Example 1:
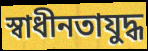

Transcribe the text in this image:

স্বাধীনতাযুদ্ধ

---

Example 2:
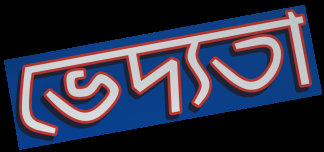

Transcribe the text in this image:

ভেদ্যতা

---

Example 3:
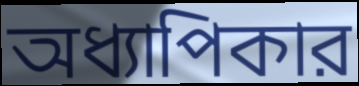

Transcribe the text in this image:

অধ্যাপিকার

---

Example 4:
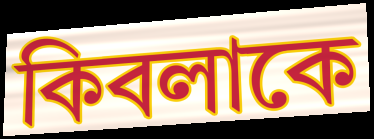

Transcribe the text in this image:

কিবলাকে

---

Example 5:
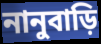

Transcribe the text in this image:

নানুবাড়ি